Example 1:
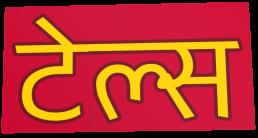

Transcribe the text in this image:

टेल्स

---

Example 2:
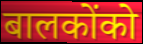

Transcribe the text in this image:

बालकोंको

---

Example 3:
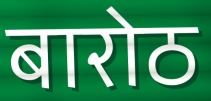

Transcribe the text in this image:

बारोठ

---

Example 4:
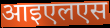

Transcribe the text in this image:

आइएलएस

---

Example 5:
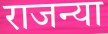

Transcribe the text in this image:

राजन्या